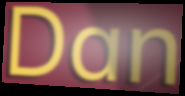
Dan